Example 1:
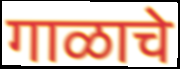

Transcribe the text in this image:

गाळाचे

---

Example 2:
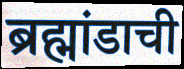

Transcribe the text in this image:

ब्रह्मांडाची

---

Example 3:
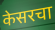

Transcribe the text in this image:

केसरचा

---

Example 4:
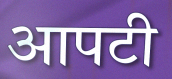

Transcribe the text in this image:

आपटी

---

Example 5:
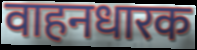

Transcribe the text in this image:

वाहनधारक